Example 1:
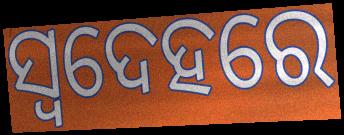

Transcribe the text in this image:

ସ୍ଵଦେହରେ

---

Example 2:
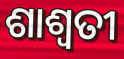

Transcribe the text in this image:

ଶାଶ୍ଵତୀ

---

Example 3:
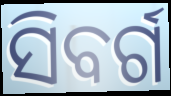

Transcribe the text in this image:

ସିବର୍ଗ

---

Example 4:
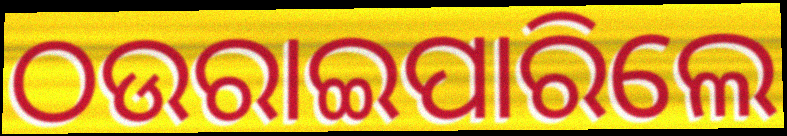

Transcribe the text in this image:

ଠଉରାଇପାରିଲେ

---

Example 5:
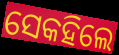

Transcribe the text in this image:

ସେକହିଲେ